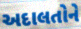
અદાલતોને